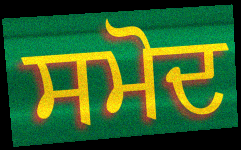
ਸਮੋਦ